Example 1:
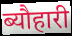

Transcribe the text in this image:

ब्यौहारी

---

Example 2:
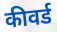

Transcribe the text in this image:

कीवर्ड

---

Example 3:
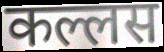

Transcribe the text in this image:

कल्लस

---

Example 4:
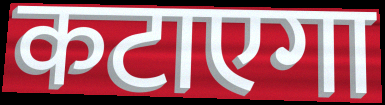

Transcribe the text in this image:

कटाएगा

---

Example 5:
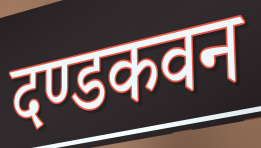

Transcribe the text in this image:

दण्डकवन